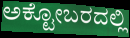
ಅಕ್ಟೋಬರದಲ್ಲಿ